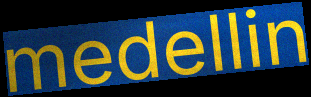
medellin